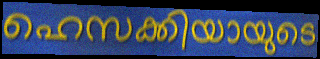
ഹെസക്കിയായുടെ